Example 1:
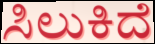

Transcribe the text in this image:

ಸಿಲುಕಿದೆ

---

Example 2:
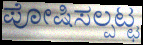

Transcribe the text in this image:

ಪೋಷಿಸಲ್ಪಟ್ಟ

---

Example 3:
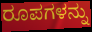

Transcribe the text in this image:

ರೂಪಗಳನ್ನು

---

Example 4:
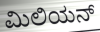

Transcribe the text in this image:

ಮಿಲಿಯನ್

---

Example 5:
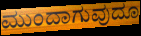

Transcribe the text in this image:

ಮುಂದಾಗುವುದೂ